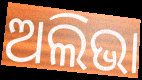
ଅଲିଭା